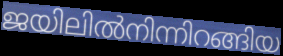
ജയിലിൽനിന്നിറങ്ങിയ